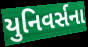
યુનિવર્સના